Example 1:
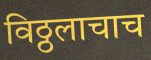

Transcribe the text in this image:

विठ्ठलाचाच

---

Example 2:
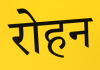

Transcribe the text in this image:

रोहन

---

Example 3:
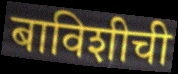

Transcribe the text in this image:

बाविशीची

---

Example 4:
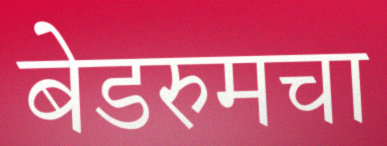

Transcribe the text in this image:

बेडरुमचा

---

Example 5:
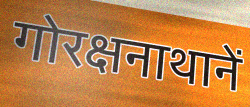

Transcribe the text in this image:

गोरक्षनाथानें